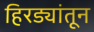
हिरड्यांतून